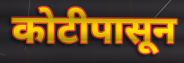
कोटीपासून